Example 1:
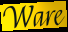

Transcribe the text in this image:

Ware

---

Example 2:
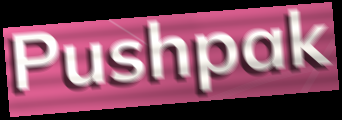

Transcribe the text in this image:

Pushpak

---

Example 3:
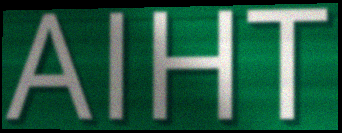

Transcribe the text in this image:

AIHT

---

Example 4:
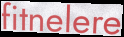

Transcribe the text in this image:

fitnelere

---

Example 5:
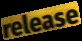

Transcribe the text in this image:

release